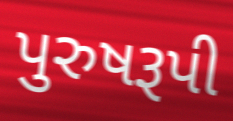
પુરુષરૂપી